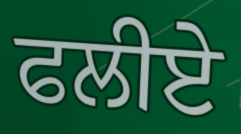
ਫਲੀਏ